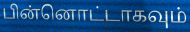
பின்னொட்டாகவும்